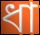
ধা